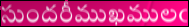
సుందరీముఖములఁ